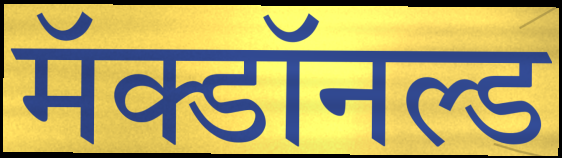
मॅक्डॉनल्ड